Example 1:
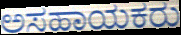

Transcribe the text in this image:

ಅಸಹಾಯಕರು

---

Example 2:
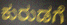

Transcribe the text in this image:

ಕುರುಡಗೆ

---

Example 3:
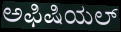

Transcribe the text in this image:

ಅಫಿಷಿಯಲ್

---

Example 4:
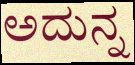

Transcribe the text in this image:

ಅದುನ್ನ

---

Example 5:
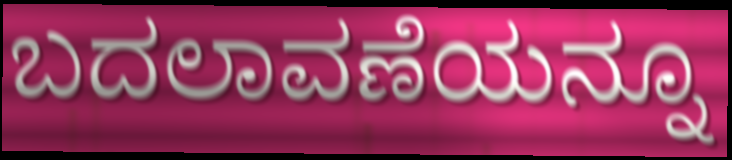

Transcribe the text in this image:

ಬದಲಾವಣೆಯನ್ನೂ